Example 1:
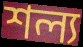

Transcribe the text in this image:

শল্য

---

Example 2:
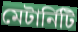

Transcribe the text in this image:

মেটার্নিটি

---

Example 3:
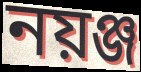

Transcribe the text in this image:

নয়ঞ্জ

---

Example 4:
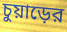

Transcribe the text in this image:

চুয়াড়ের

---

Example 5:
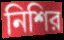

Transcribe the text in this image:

নিশির